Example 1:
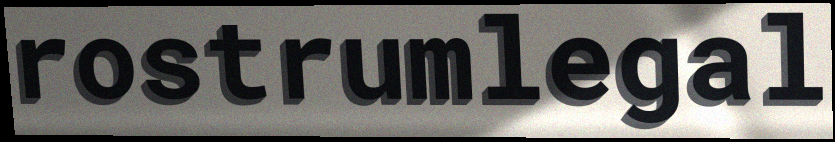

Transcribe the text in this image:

rostrumlegal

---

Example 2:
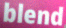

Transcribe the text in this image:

blend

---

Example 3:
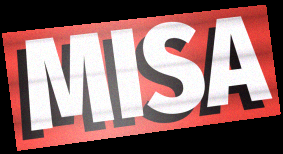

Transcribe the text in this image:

MISA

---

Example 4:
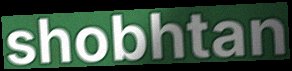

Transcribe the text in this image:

shobhtan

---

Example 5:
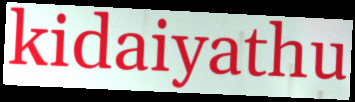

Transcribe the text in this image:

kidaiyathu